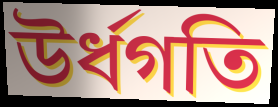
উর্ধগতি